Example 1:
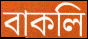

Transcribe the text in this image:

বাকলি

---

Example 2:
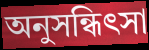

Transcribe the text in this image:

অনুসন্ধিৎসা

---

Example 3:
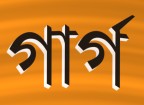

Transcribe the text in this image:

গাৰ্গ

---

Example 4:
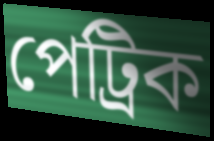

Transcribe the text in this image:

পেট্ৰিক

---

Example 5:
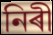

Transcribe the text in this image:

নিৰী